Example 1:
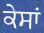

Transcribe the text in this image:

ਕੇਸਾਂ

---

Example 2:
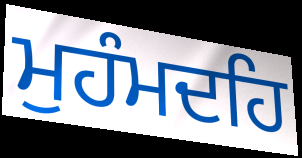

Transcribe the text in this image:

ਮੁਹੰਮਦਹਿ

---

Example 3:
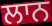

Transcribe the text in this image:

ਲਾਨ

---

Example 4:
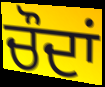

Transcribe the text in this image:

ਚੌਦਾਂ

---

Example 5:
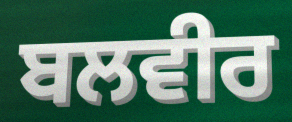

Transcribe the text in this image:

ਬਲਵੀਰ